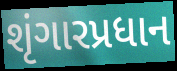
શૃંગારપ્રધાન